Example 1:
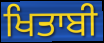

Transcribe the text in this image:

ਖਿਤਾਬੀ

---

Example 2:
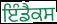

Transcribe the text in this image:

ਇੰਡੈਕਸ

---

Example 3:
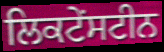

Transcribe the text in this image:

ਲਿਕਟੇਂਸਟੀਨ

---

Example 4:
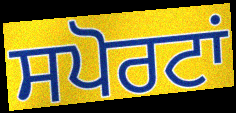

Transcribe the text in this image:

ਸਪੋਰਟਾਂ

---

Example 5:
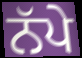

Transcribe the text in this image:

ਨੱਪੇ